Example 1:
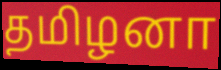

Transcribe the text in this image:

தமிழனா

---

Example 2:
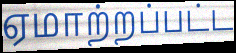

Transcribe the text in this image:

ஏமாற்றப்பட்ட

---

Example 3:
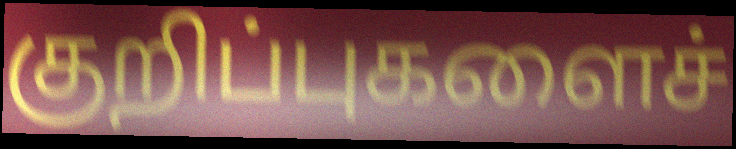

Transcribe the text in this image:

குறிப்புகளைச்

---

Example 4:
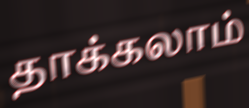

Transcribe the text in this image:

தாக்கலாம்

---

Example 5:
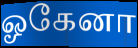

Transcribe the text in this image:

ஓகேனா